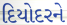
દિયોદરને